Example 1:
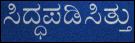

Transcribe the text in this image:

ಸಿದ್ಧಪಡಿಸಿತ್ತು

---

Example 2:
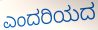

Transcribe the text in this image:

ಎಂದರಿಯದ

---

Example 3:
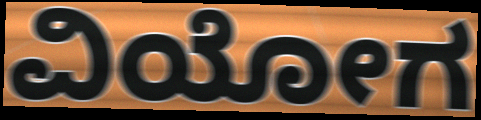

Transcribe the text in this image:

ವಿಯೋಗ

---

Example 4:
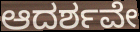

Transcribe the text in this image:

ಆದರ್ಶವೇ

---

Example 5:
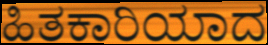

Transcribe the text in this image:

ಹಿತಕಾರಿಯಾದ